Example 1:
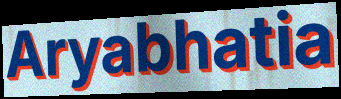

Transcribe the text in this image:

Aryabhatia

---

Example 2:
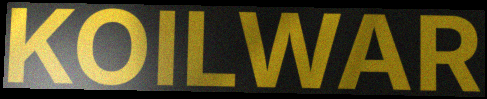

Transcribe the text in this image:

KOILWAR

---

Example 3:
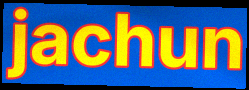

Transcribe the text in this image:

jachun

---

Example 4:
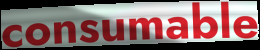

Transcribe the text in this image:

consumable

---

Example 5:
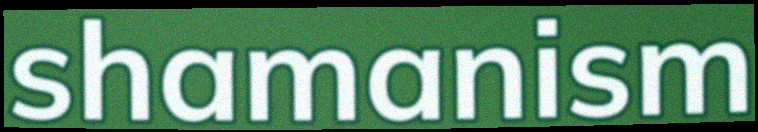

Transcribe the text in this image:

shamanism